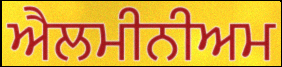
ਐਲਮੀਨੀਅਮ